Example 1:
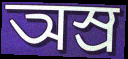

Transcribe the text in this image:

অস্র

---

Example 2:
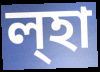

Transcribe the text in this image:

ল্হা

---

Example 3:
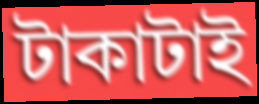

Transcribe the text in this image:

টাকাটাই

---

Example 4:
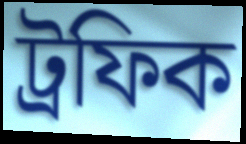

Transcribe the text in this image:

ট্রফিক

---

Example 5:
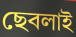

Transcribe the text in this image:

ছেবলাই